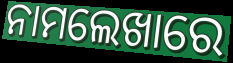
ନାମଲେଖାରେ